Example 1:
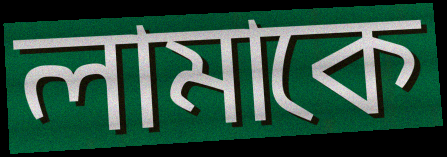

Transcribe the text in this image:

লামাকে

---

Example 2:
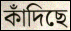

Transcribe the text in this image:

কাঁদিছে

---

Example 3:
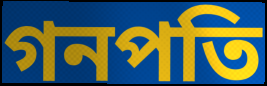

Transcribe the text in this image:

গনপতি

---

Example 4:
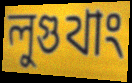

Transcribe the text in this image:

লুগুথাং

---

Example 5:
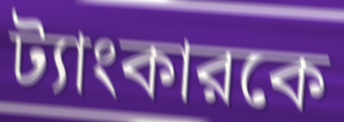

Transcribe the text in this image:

ট্যাংকারকে